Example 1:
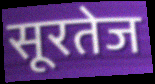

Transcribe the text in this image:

सूरतेज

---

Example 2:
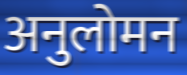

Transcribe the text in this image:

अनुलोमन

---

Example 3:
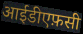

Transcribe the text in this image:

आईडीएफ़सी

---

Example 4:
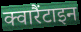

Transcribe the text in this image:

क्वारैंटाइन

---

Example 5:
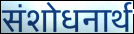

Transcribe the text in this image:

संशोधनार्थ